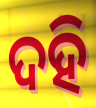
ଦହି